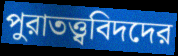
পুরাতত্ত্ববিদদের